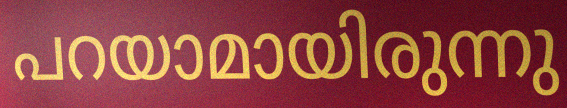
പറയാമായിരുന്നു